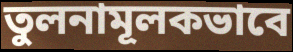
তুলনামূলকভাবে